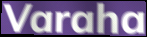
Varaha